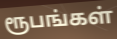
ரூபங்கள்